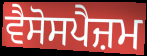
ਵੈਸੋਸਪੈਜ਼ਮ